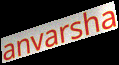
anvarsha